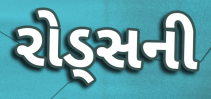
રોડ્સની